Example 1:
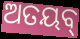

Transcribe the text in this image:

ଅତୟବ୍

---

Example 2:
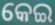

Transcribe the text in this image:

କେଇ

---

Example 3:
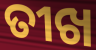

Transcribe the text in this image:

ତୀଖ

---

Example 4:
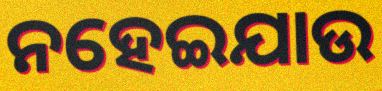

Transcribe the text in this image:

ନହେଇଯାଉ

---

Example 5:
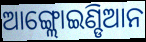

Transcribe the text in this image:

ଆଙ୍ଗ୍ଲୋଇଣ୍ଡିଆନ